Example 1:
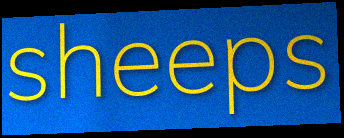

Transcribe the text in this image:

sheeps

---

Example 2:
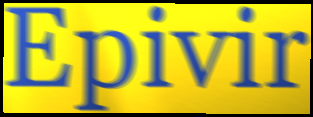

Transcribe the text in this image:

Epivir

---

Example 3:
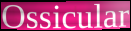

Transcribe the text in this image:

Ossicular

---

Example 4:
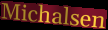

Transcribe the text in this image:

Michalsen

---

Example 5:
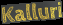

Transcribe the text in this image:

Kalluri